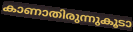
കാണാതിരുന്നുകൂടാ